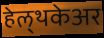
हेल्थकेअर